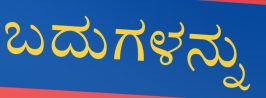
ಬದುಗಳನ್ನು